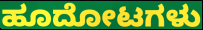
ಹೂದೋಟಗಳು